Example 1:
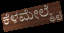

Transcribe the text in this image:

ಕೆಳಮೇಲ್ಮೈ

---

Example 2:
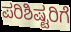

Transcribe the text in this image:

ಪರಿಶಿಷ್ಟರಿಗೆ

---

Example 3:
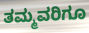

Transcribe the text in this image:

ತಮ್ಮವರಿಗೂ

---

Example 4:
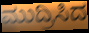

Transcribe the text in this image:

ಮುದ್ರಿಸಿದ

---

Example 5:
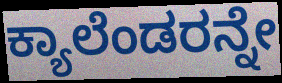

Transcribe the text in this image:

ಕ್ಯಾಲೆಂಡರನ್ನೇ